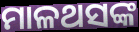
ମାଳଥସଙ୍କ